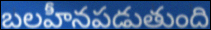
బలహీనపడుతుంది